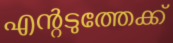
എന്റടുത്തേക്ക്